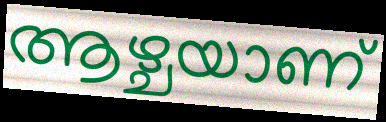
ആഴ്ചയാണ്